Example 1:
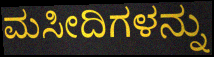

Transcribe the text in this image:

ಮಸೀದಿಗಳನ್ನು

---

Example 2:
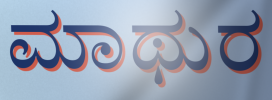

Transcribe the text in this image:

ಮಾಥುರ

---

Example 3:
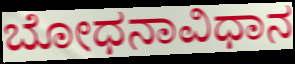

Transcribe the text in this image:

ಬೋಧನಾವಿಧಾನ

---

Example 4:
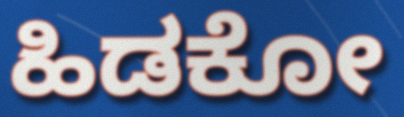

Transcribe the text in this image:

ಹಿಡಕೋ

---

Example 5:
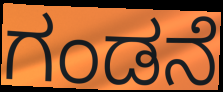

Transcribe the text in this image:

ಗಂಡನೆ